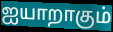
ஐயாறாகும்